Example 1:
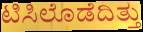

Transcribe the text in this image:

ಟಿಸಿಲೊಡೆದಿತ್ತು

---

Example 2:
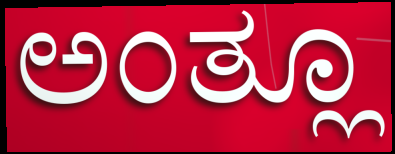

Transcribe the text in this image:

ಅಂತ್ಲೂ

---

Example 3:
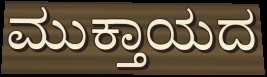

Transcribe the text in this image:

ಮುಕ್ತಾಯದ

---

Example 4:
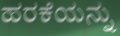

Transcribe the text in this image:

ಹರಕೆಯನ್ನು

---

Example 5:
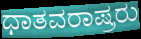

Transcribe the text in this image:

ಧಾತವರಾಷ್ರರು